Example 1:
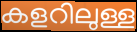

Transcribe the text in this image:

കളറിലുള്ള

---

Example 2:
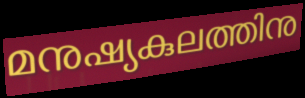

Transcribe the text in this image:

മനുഷ്യകുലത്തിനു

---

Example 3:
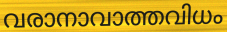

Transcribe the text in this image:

വരാനാവാത്തവിധം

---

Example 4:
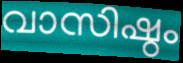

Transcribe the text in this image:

വാസിഷ്ഠം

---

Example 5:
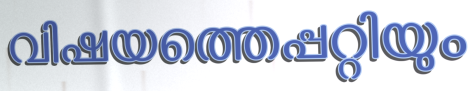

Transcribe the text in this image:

വിഷയത്തെപ്പറ്റിയും